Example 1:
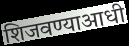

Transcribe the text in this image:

शिजवण्याआधी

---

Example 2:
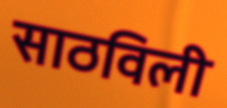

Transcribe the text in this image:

साठविली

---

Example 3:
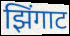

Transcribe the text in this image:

झिंगाट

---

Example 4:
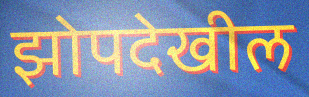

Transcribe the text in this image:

झोपदेखील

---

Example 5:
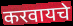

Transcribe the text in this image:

करवायचे